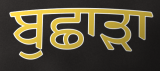
ਬੁਛਾੜਾ